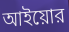
আইয়োর